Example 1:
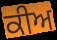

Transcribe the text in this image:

ਕੀਅ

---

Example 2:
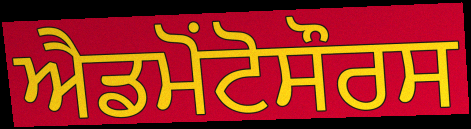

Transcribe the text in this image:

ਐਡਮੋਂਟੋਸੌਰਸ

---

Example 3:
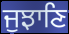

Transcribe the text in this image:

ਜੁਝਾਣਿ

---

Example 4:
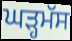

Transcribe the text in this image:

ਘੜ੍ਹਮੱਸ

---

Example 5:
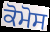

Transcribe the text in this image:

ਕੋਮੋਸ